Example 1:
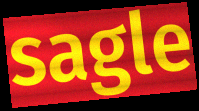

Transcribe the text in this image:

sagle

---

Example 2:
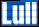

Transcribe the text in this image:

Lull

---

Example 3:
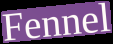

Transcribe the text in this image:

Fennel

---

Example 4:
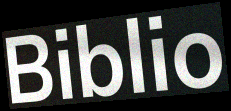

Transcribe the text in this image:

Biblio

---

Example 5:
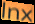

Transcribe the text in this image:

lnx